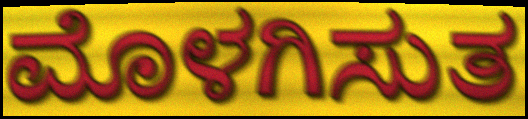
ಮೊಳಗಿಸುತ